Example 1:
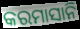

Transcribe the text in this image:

କରମାସାନି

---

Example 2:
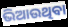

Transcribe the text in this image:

ଭିଆଉଥିବା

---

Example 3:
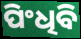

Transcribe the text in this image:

ପିଂଧିବି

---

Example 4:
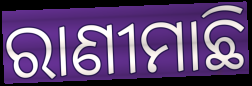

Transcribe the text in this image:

ରାଣୀମାଛି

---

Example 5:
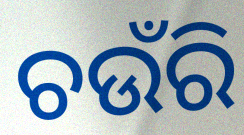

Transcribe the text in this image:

ଚଉଁରି